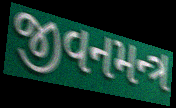
જીવનમન્ત્ર